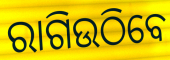
ରାଗିଉଠିବେ